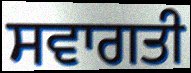
ਸਵਾਗਤੀ